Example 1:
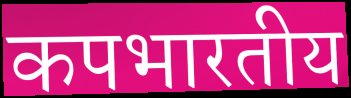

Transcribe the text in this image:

कपभारतीय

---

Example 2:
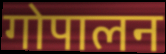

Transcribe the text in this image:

गोपालन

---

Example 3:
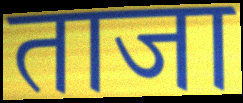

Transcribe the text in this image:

ताजा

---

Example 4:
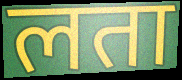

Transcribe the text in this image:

लता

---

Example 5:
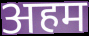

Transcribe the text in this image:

अहम